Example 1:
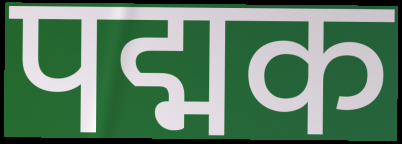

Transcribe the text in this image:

पद्मक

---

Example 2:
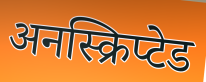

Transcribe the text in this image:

अनस्क्रिप्टेड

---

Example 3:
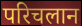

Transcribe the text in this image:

परिचलान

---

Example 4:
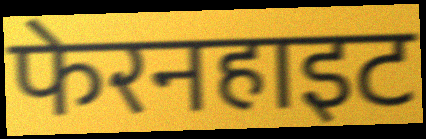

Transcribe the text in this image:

फेरनहाइट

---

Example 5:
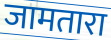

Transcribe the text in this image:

जामतारा